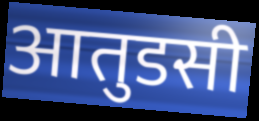
आतुडसी